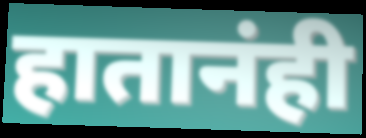
हातानंही